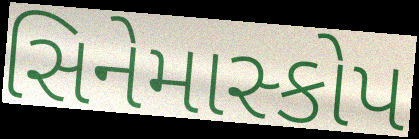
સિનેમાસ્કોપ